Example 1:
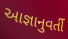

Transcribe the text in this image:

આજ્ઞાનુવર્તી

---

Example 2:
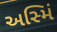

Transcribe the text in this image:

અસ્મિં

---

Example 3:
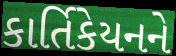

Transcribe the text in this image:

કાર્તિકેયનને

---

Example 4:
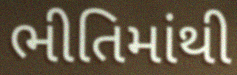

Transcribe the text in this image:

ભીતિમાંથી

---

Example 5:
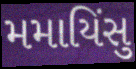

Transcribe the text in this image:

મમાયિંસુ